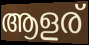
ആളര്